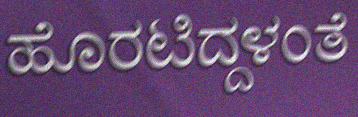
ಹೊರಟಿದ್ದಳಂತೆ